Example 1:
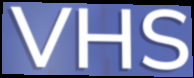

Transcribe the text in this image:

VHS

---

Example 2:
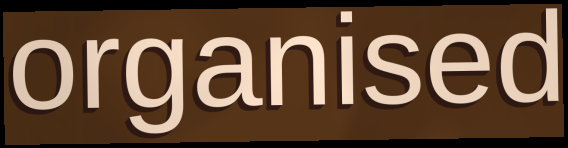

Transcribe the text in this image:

organised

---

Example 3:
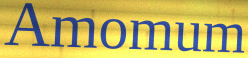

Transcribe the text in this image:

Amomum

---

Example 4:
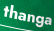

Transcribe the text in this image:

thanga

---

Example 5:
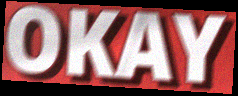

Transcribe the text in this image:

OKAY